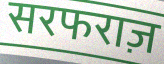
सरफराज़